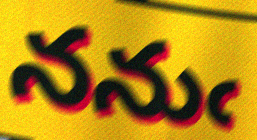
ననుఁ